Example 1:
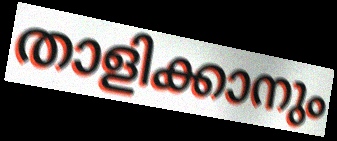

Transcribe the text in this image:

താളിക്കാനും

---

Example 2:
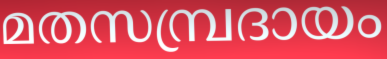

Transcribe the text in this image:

മതസമ്പ്രദായം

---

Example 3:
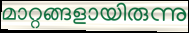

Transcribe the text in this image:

മാറ്റങ്ങളായിരുന്നു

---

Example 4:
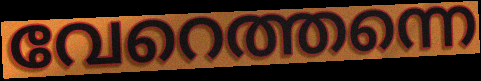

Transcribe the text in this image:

വേറെത്തന്നെ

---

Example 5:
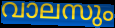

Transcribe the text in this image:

വാലസും